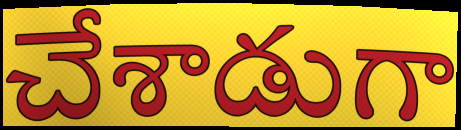
చేశాడుగా